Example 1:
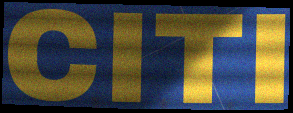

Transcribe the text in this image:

CITI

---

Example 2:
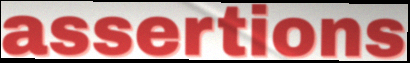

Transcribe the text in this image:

assertions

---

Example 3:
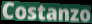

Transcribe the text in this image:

Costanzo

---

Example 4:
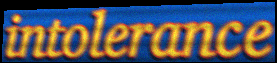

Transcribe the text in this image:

intolerance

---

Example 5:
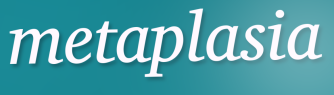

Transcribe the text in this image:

metaplasia